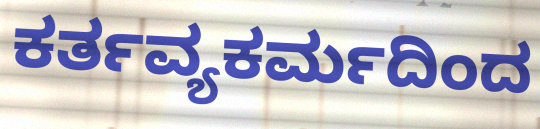
ಕರ್ತವ್ಯಕರ್ಮದಿಂದ